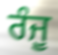
ਰੰਜੂ